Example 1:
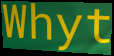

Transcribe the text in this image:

Whyt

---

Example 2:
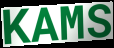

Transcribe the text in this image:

KAMS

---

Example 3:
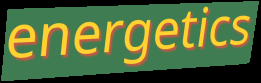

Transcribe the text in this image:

energetics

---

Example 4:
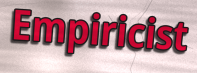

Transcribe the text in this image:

Empiricist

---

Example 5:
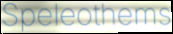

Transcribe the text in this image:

Speleothems